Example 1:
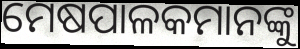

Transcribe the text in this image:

ମେଷପାଳକମାନଙ୍କୁ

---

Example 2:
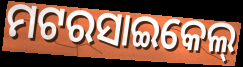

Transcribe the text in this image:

ମଟରସାଇକେଲ୍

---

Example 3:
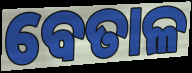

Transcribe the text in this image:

ବେତାଳ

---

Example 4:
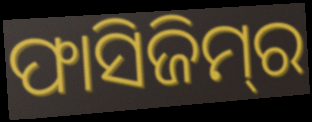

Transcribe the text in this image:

ଫାସିଜିମ୍‌ର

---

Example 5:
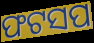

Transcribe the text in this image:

ଫଟସପ